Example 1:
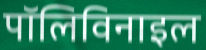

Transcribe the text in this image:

पॉलिविनाइल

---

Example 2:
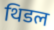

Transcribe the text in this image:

थिडल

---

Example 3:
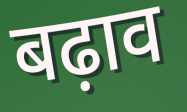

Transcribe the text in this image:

बढ़ाव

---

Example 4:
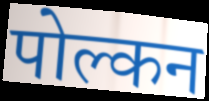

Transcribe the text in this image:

पोल्कन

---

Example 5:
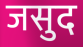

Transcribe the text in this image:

जसुद